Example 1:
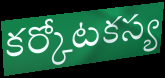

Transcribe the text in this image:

కర్కోటకస్య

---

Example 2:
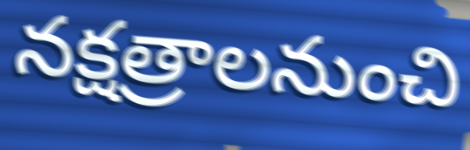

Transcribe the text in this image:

నక్షత్రాలనుంచి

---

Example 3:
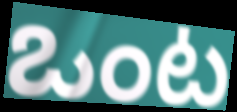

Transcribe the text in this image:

ఒంట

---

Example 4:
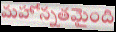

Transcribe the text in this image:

మహోన్నతమైంది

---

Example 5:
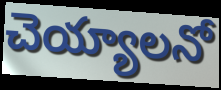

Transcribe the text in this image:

చెయ్యాలనో